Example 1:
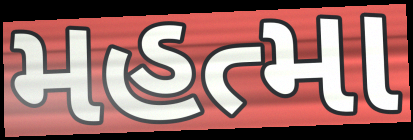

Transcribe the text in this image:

મહત્મા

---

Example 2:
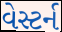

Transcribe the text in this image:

વેસ્ટર્ન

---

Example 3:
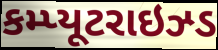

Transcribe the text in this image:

કમ્પ્યૂટરાઇઝ્ડ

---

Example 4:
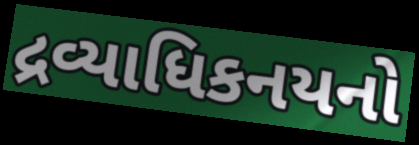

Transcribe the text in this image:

દ્રવ્યાધિકનયનો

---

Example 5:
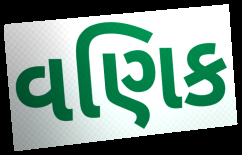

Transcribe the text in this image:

વણિક